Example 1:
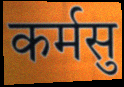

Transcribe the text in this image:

कर्मसु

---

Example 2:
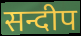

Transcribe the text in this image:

सन्दीप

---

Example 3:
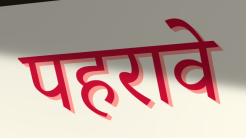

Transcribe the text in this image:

पहरावे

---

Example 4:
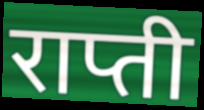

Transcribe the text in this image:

राप्ती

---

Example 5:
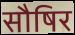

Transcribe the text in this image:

सौषिर